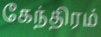
கேந்திரம்